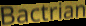
Bactrian